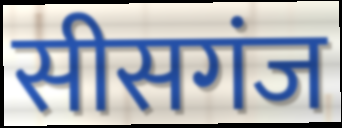
सीसगंज